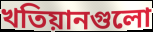
খতিয়ানগুলো